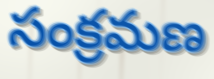
సంక్రమణ